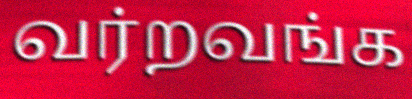
வர்றவங்க